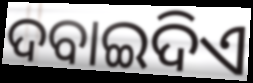
ଦବାଇଦିଏ